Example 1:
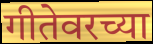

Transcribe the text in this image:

गीतेवरच्या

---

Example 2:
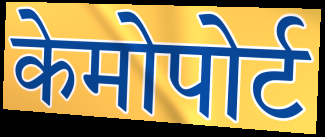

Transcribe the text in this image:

केमोपोर्ट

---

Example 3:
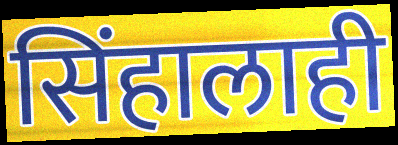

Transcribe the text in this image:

सिंहालाही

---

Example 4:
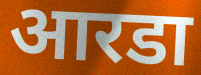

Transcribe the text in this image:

आरडा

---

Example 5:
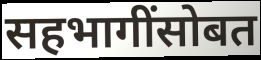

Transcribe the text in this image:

सहभागींसोबत